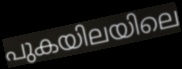
പുകയിലയിലെ